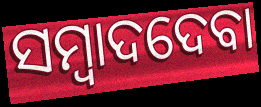
ସମ୍ବାଦଦେବା